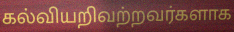
கல்வியறிவற்றவர்களாக